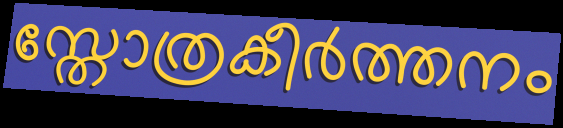
സ്തോത്രകീർത്തനം